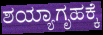
ಶಯ್ಯಾಗೃಹಕ್ಕೆ